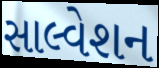
સાલ્વેશન